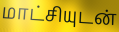
மாட்சியுடன்